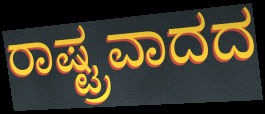
ರಾಷ್ಟ್ರವಾದದ